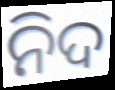
ନିଦ